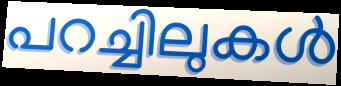
പറച്ചിലുകൾ